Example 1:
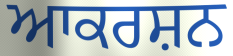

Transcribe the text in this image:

ਆਕਰਸ਼ਨ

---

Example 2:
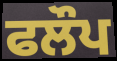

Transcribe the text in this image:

ਫਲੌਪ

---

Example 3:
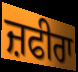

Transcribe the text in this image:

ਜ਼ਫੀਰਾ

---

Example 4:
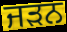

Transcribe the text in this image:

ਜੜਨ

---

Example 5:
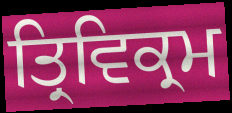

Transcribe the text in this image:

ਤ੍ਰਿਵਿਕ੍ਰਮ